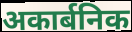
अकार्बनिक